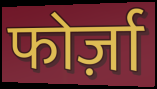
फोर्ज़ा